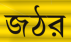
জঠর